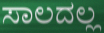
ಸಾಲದಲ್ಲ